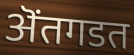
ऄंतगडत